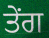
ਤੇਂਗ